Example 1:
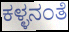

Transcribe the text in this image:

ಕಳ್ಳನಂತೆ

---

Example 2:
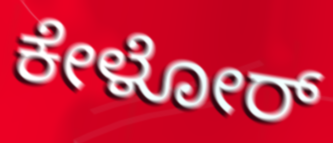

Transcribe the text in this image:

ಕೇಳೋರ್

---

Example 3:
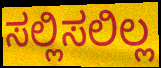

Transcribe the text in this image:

ಸಲ್ಲಿಸಲಿಲ್ಲ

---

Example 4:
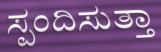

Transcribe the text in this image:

ಸ್ಪಂದಿಸುತ್ತಾ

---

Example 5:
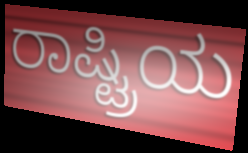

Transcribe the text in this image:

ರಾಷ್ಟ್ರಿಯ